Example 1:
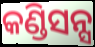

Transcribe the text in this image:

କଣ୍ଡିସନ୍ସ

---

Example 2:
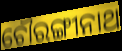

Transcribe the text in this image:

ଚୌରଙ୍ଗୀନାଥ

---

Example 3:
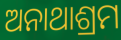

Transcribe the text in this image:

ଅନାଥାଶ୍ରମ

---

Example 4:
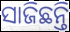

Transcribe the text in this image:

ସାଜିଛନ୍ତି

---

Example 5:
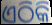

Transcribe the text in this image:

ଏଠିକି